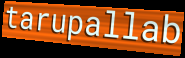
tarupallab